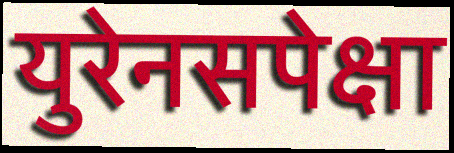
युरेनसपेक्षा